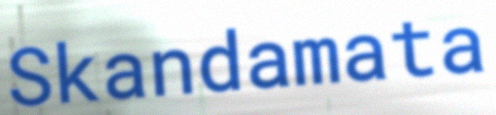
Skandamata